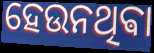
ହେଉନଥିଵା